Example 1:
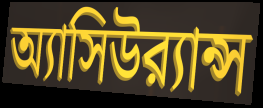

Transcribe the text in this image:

অ্যাসিউর‍্যান্স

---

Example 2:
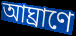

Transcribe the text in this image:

আঘ্রাণে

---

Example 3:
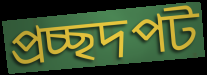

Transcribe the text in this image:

প্রচ্ছদপট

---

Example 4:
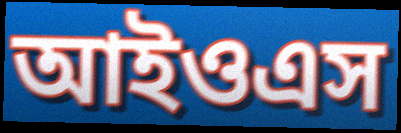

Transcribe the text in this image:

আইওএস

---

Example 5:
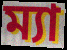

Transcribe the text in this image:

ম্যা